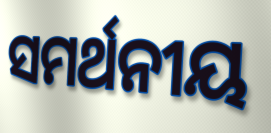
ସମର୍ଥନୀୟ